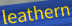
leathern